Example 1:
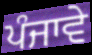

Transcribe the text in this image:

ਪੰਜਾਵੇ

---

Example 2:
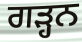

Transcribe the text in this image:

ਗੜ੍ਹਨ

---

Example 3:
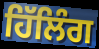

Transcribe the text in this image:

ਹਿੱਲਿੰਗ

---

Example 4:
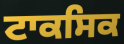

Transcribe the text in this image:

ਟਾਕਸਿਕ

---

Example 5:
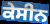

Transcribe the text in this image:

ਕੇਸੀਨ